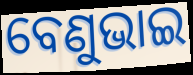
ବେଣୁଭାଇ